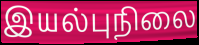
இயல்புநிலை